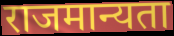
राजमान्यता